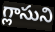
గ్లాసుని